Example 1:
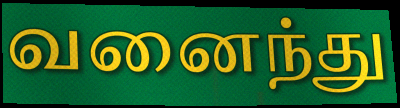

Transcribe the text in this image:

வனைந்து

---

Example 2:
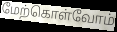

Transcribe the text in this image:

மேற்கொள்வோம்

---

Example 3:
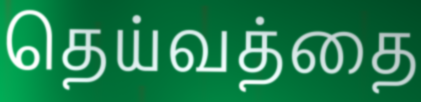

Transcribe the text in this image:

தெய்வத்தை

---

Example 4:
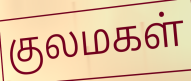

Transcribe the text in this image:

குலமகள்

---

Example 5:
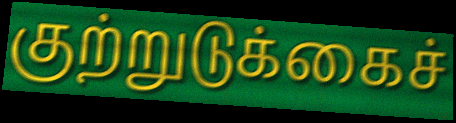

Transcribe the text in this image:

குற்றுடுக்கைச்